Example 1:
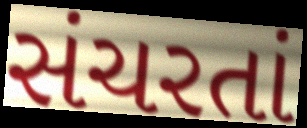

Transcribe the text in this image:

સંચરતાં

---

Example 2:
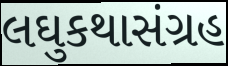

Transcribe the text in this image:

લઘુકથાસંગ્રહ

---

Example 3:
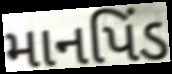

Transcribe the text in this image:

માનપિંડ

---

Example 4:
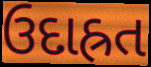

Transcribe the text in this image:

ઉદાહ્રત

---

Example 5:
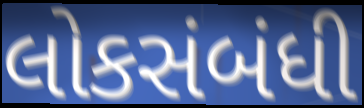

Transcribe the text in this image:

લોકસંબંધી